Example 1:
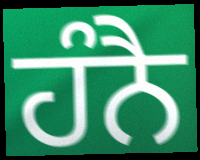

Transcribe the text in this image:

ਹੰਨੈ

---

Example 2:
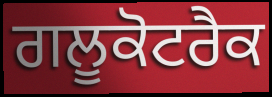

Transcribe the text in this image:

ਗਲੂਕੋਟਰੈਕ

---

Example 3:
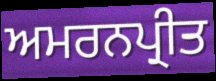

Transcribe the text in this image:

ਅਮਰਨਪ੍ਰੀਤ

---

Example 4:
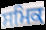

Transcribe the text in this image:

ਸਮਿਕ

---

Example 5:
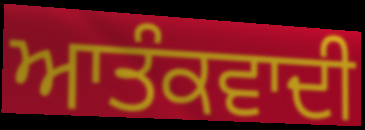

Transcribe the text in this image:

ਆਤੰਕਵਾਦੀ